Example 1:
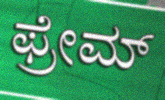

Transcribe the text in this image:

ಫ್ರೇಮ್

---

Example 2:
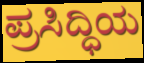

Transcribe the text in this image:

ಪ್ರಸಿದ್ಧಿಯ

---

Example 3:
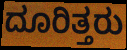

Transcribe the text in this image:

ದೂರಿತ್ತರು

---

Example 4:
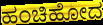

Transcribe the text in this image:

ಹಂಚಿಹೋದ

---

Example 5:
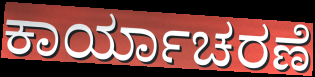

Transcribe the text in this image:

ಕಾರ್ಯಾಚರಣೆ